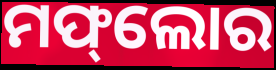
ମଫ୍‌ଲୋର